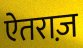
ऐतराज़